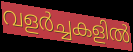
വളർച്ചകളിൽ